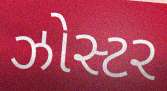
ઝોસ્ટર